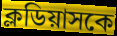
ক্লডিয়াসকে